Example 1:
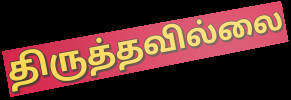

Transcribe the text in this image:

திருத்தவில்லை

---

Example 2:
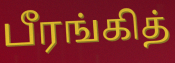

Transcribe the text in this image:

பீரங்கித்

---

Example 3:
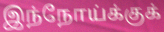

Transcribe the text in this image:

இந்நோய்க்குக்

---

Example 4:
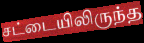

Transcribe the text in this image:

சட்டையிலிருந்த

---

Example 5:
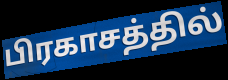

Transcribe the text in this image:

பிரகாசத்தில்